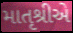
માતૃશ્રીએ